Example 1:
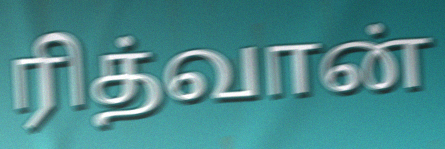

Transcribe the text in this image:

ரித்வான்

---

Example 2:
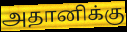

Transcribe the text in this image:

அதானிக்கு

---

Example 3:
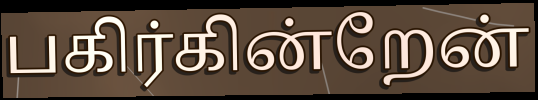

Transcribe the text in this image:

பகிர்கின்றேன்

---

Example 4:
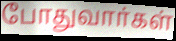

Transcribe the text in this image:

போதுவார்கள்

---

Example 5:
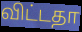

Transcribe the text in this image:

விட்டதா